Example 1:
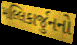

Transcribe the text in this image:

મલ્લિકાર્જુનનો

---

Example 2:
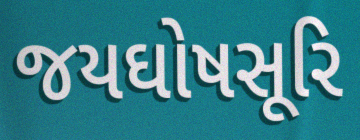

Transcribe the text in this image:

જયઘોષસૂરિ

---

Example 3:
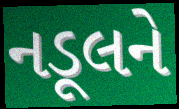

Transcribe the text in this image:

નડૂલને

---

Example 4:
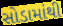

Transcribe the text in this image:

સોડામાંથી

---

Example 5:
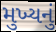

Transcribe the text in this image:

મુખ્યનું